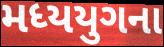
મધ્યયુગના